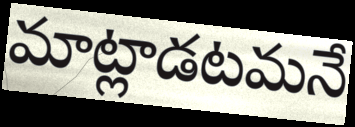
మాట్లాడటమనే